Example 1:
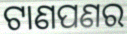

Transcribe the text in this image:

ଟାଣପଣର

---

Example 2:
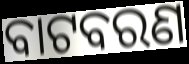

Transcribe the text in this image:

ବାଟବରଣ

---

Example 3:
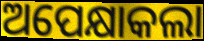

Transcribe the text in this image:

ଅପେକ୍ଷାକଲା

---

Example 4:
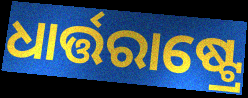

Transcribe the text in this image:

ଧାର୍ତ୍ତରାଷ୍ଟ୍ରେ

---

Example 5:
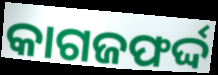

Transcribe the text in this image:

କାଗଜଫର୍ଦ୍ଦ